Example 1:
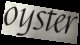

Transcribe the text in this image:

oyster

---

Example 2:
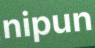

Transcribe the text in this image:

nipun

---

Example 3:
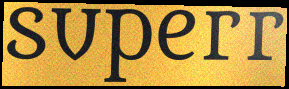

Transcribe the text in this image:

superr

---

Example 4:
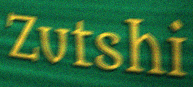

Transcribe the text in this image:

Zutshi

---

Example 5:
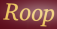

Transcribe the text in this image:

Roop